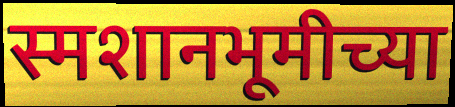
स्मशानभूमीच्या